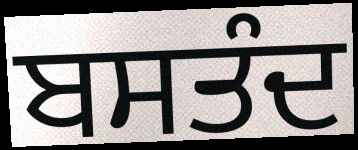
ਬਸਤੰਦ